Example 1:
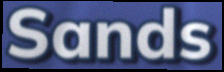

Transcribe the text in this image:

Sands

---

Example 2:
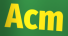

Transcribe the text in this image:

Acm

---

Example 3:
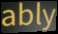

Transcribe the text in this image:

ably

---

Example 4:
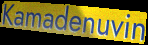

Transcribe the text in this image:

Kamadenuvin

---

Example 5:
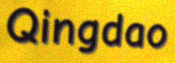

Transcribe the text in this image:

Qingdao